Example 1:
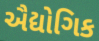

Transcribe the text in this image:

ઐદ્યોગિક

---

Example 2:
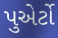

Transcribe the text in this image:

પુએર્ટો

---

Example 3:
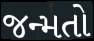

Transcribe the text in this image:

જન્મતો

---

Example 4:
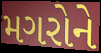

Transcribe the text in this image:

મગરોને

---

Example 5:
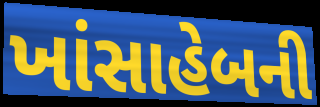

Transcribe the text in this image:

ખાંસાહેબની